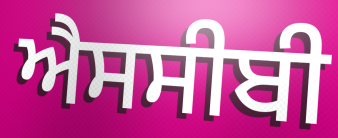
ਐਸਸੀਬੀ